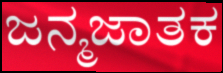
ಜನ್ಮಜಾತಕ